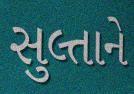
સુલ્તાને